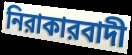
নিরাকারবাদী